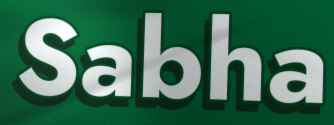
Sabha